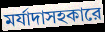
মর্যাদাসহকারে